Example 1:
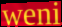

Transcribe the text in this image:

weni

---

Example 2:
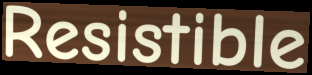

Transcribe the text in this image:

Resistible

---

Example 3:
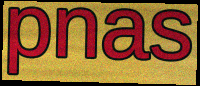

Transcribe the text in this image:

pnas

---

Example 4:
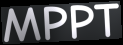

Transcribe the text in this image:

MPPT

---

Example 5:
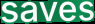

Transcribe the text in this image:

saves